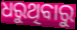
ଧରୁଥିବାରୁ